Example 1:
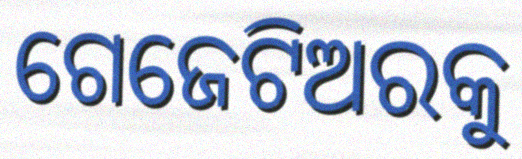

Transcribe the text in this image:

ଗେଜେଟିଅରକୁ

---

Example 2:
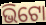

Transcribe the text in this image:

ଭିଟୋ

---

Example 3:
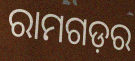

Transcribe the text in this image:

ରାମଗଡ଼ର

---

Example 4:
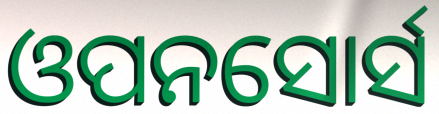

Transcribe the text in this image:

ଓପନସୋର୍ସ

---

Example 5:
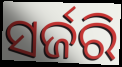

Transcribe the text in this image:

ସର୍ଜରି